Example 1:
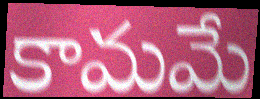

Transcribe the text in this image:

కామమే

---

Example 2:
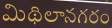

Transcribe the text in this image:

మిథిలానగరం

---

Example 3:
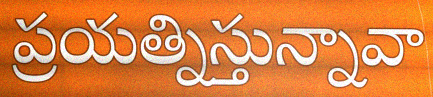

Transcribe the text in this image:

ప్రయత్నిస్తున్నావా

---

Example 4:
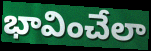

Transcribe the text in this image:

భావించేలా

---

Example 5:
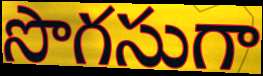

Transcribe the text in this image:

సొగసుగా